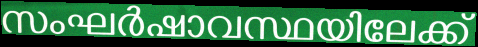
സംഘർഷാവസ്ഥയിലേക്ക്